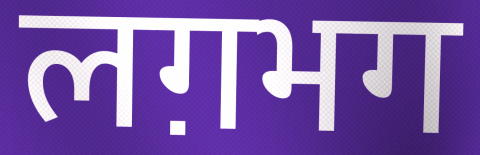
लग़भग